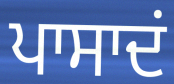
ਪਾਸਾਦਂ